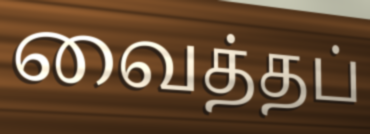
வைத்தப்